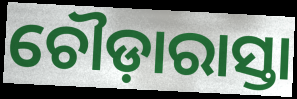
ଚୌଡ଼ାରାସ୍ତା